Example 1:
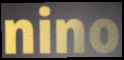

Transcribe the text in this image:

nino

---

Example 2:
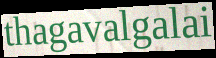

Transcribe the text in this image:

thagavalgalai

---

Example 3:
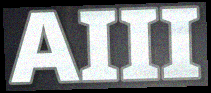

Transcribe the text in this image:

AIII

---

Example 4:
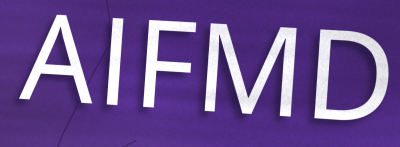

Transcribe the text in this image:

AIFMD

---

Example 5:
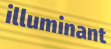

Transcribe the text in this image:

illuminant